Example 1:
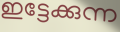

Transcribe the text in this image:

ഇട്ടേക്കുന്ന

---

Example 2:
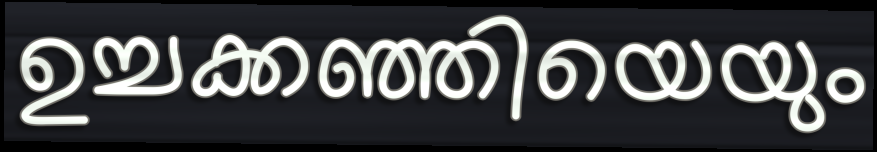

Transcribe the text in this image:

ഉച്ചക്കഞ്ഞിയെയും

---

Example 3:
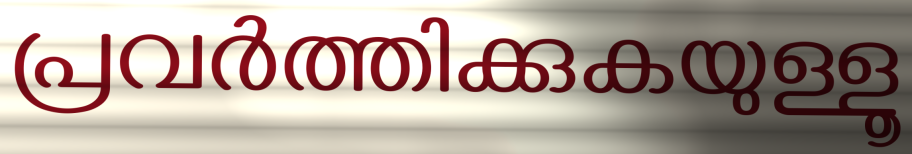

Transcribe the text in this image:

പ്രവർത്തിക്കുകയുള്ളൂ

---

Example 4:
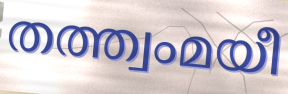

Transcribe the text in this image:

തത്ത്വംമയീ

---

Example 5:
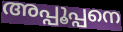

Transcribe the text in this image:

അപ്പൂപ്പനെ